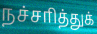
நச்சரித்துக்